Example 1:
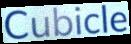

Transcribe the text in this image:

Cubicle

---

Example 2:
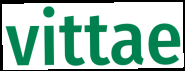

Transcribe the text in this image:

vittae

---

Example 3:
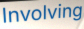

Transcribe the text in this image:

Involving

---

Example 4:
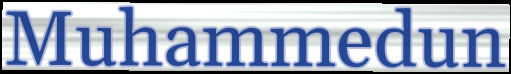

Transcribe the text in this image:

Muhammedun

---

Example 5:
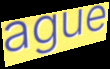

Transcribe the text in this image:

ague